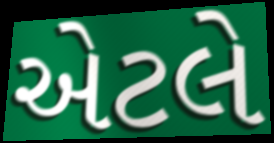
એટલે